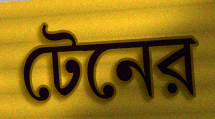
টেনের